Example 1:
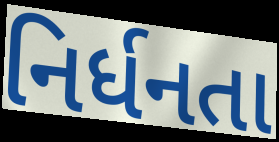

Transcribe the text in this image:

નિર્ધનતા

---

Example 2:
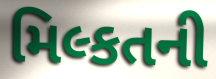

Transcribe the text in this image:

મિલ્કતની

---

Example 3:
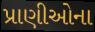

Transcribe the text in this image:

પ્રાણીઓના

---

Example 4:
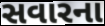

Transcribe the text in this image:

સવારના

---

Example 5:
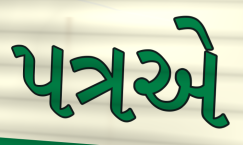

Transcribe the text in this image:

પત્રએ